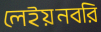
লেইয়নবরি